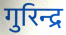
गुरिन्द्र